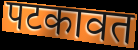
पटकावत